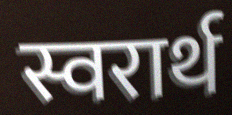
स्वरार्थ